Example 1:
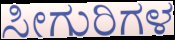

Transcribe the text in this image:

ಸೀಗುರಿಗಳ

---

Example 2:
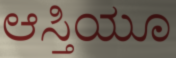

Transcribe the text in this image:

ಆಸ್ತಿಯೂ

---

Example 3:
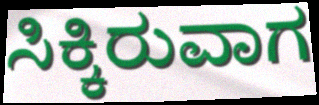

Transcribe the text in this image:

ಸಿಕ್ಕಿರುವಾಗ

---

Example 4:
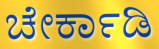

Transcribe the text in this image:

ಚೇರ್ಕಾಡಿ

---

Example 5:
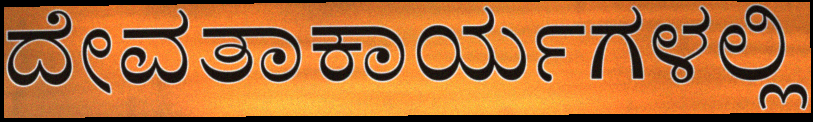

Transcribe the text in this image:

ದೇವತಾಕಾರ್ಯಗಳಲ್ಲಿ